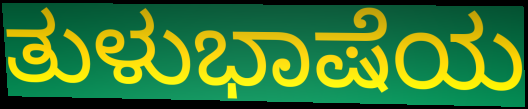
ತುಳುಭಾಷೆಯ